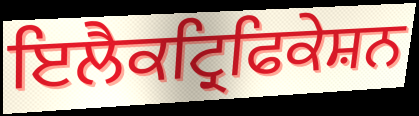
ਇਲੈਕਟ੍ਰਿਫਿਕੇਸ਼ਨ